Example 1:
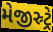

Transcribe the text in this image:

મેજીસ્ર્ટ્રે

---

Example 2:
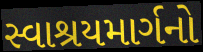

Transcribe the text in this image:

સ્વાશ્રયમાર્ગનો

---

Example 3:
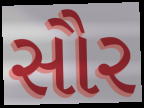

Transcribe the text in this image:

સૌર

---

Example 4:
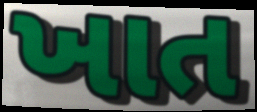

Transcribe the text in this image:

ખાત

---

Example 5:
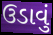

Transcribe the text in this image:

ઉડાવું